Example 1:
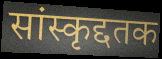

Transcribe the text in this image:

सांस्कृद्दतक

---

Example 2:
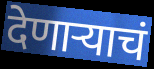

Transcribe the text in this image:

देणाऱ्याचं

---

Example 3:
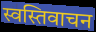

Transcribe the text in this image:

स्वस्तिवाचन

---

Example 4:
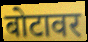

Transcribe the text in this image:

बोटावर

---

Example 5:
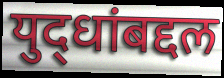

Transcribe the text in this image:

युद्धांबद्दल